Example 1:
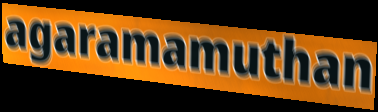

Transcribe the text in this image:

agaramamuthan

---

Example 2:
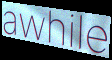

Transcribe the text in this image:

awhile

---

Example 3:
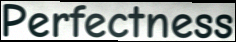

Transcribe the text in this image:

Perfectness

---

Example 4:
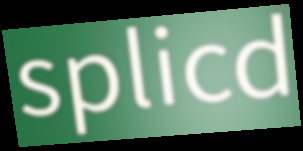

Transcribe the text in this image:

splicd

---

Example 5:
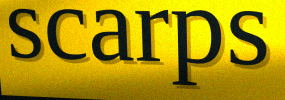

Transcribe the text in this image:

scarps